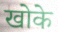
खोके